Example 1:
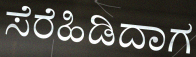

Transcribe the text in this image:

ಸೆರೆಹಿಡಿದಾಗ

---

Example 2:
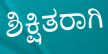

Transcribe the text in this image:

ಶಿಕ್ಷಿತರಾಗಿ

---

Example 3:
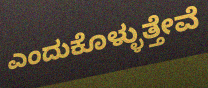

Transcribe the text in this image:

ಎಂದುಕೊಳ್ಳುತ್ತೇವೆ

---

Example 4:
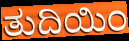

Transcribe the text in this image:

ತುದಿಯಿಂ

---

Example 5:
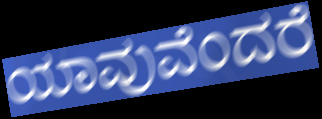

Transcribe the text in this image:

ಯಾವುವೆಂದರೆ